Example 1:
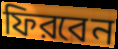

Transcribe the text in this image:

ফিরবেন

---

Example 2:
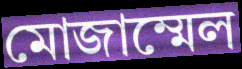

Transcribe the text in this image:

মোজাম্মেল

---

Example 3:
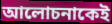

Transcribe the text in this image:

আলোচনাকেই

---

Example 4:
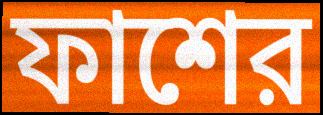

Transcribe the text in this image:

ফাশের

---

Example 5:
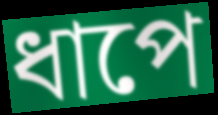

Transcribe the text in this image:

ধাপে